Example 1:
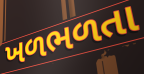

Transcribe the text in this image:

ખળભળતા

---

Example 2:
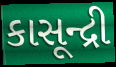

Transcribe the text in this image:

કાસૂન્દ્રી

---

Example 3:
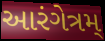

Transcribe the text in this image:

આરંગેત્રમ્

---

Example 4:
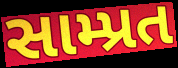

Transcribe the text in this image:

સામ્પ્રત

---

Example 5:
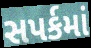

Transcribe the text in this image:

સપર્કમાં